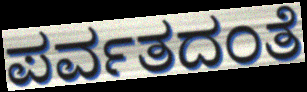
ಪರ್ವತದಂತೆ